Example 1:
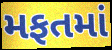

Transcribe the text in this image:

મફતમાં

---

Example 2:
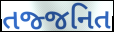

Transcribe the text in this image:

તજ્જનિત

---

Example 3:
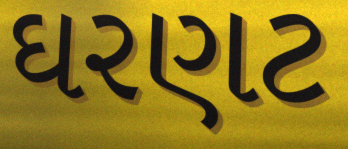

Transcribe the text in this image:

ઘરણટ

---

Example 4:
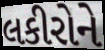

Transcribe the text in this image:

લકીરોને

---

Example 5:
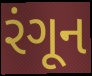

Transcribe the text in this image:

રંગૂન